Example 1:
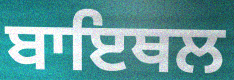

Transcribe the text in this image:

ਬਾਇਥਲ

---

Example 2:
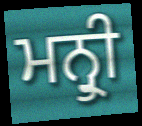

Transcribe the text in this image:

ਮਨ੍ਤ੍ਰੀ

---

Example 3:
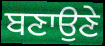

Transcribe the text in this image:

ਬਣਾਉਣੇ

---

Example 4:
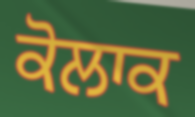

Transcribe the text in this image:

ਕੋਲਾਕ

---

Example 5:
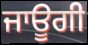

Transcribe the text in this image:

ਜਾਊਗੀ